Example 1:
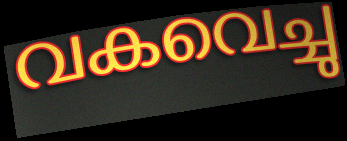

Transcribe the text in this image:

വകവെച്ചു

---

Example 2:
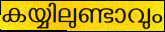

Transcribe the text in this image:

കയ്യിലുണ്ടാവും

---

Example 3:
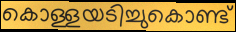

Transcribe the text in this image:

കൊള്ളയടിച്ചുകൊണ്ട്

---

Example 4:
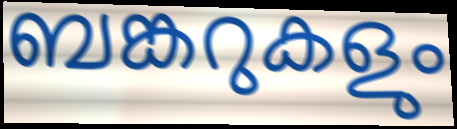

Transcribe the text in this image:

ബങ്കറുകളും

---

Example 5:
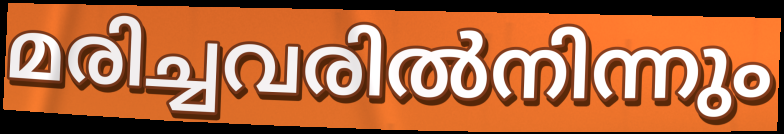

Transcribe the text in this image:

മരിച്ചവരിൽനിന്നും